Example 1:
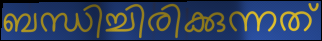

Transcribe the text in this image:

ബന്ധിച്ചിരിക്കുന്നത്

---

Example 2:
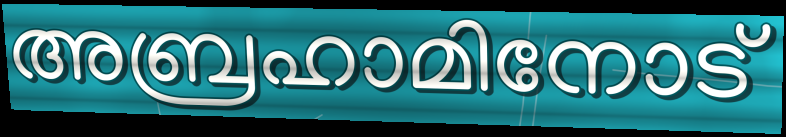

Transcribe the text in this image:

അബ്രഹാമിനോട്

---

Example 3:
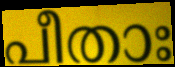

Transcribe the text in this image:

പീതാഃ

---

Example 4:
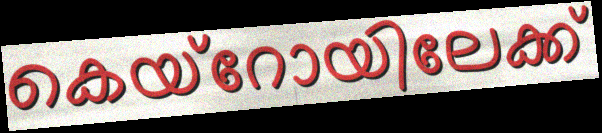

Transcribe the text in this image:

കെയ്റോയിലേക്ക്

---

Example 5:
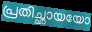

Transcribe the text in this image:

പ്രതിച്ഛായയോ